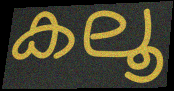
കലൂ